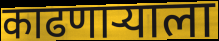
काढणार्‍याला